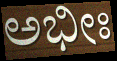
ಅಭೀಃ